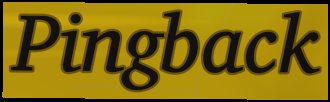
Pingback